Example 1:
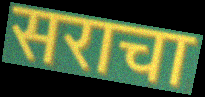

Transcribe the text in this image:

सराचा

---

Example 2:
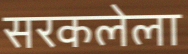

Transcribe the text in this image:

सरकलेला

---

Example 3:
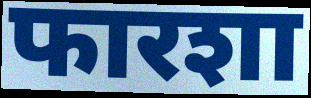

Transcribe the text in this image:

फारशा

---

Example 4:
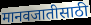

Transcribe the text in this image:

मानवजातीसाठी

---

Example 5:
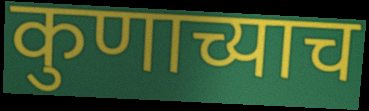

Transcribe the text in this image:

कुणाच्याच